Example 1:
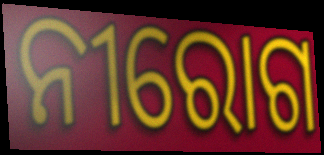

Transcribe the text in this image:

ନୀରୋଗ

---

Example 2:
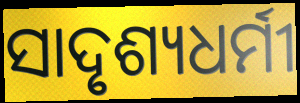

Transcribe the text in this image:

ସାଦୃଶ୍ୟଧର୍ମୀ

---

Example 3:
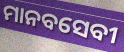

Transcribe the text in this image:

ମାନବସେବୀ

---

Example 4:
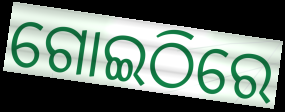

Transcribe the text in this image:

ଗୋଇଠିରେ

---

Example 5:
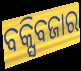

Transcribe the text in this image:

ବକ୍ସିବଜାର